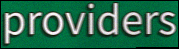
providers